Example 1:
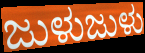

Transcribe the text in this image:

ಜುಳುಜುಳು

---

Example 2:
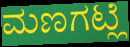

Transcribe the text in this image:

ಮಣಗಟ್ಲೆ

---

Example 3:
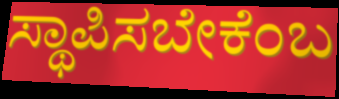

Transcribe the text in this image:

ಸ್ಥಾಪಿಸಬೇಕೆಂಬ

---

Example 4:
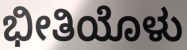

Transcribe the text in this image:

ಭೀತಿಯೊಳು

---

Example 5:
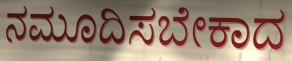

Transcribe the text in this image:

ನಮೂದಿಸಬೇಕಾದ